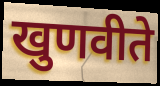
खुणवीते